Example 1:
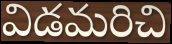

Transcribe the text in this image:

విడమరిచి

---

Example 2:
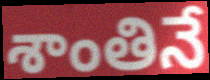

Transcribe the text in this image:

శాంతినే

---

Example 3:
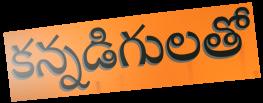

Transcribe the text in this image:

కన్నడిగులతో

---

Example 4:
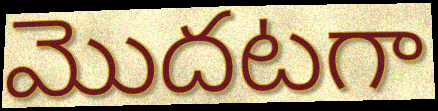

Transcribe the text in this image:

మొదటగా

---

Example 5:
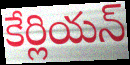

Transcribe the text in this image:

కేర్లియన్